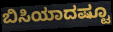
ಬಿಸಿಯಾದಷ್ಟೂ